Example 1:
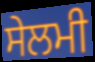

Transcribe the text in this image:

ਸੇਲਮੀ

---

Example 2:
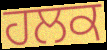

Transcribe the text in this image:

ਹਲਕ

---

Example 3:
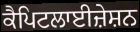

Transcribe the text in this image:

ਕੈਪਿਟਲਾਈਜ਼ੇਸ਼ਨ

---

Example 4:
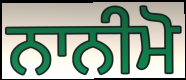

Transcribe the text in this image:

ਨਾਨੀਮੋ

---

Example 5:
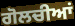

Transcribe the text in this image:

ਗੋਲਚੀਆਂ